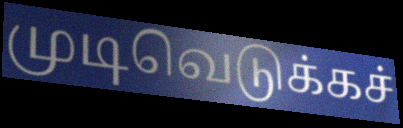
முடிவெடுக்கச்